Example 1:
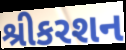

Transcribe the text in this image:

શ્રીકરશન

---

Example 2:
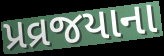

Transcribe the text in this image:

પ્રવ્રજયાના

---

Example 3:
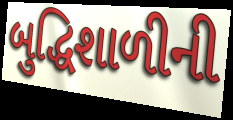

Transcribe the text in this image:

બુદ્ધિશાળીની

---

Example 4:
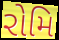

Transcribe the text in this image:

રોમિ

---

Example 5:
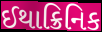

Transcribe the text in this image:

ઈથાક્રિનિક